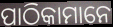
ପାଠିକାମାନେ